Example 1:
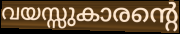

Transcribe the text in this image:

വയസ്സുകാരന്റെ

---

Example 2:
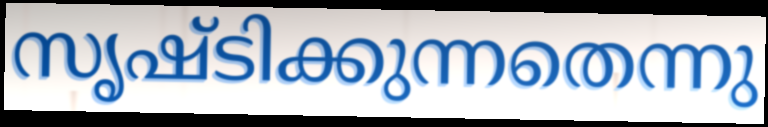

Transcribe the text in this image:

സൃഷ്ടിക്കുന്നതെന്നു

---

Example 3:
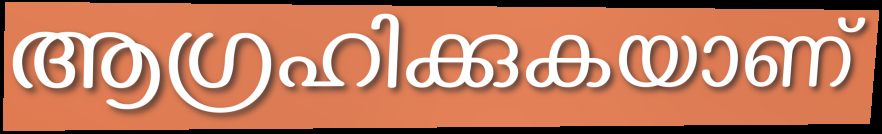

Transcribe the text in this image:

ആഗ്രഹിക്കുകയാണ്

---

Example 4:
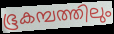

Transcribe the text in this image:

ഭൂകമ്പത്തിലും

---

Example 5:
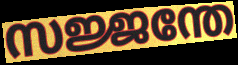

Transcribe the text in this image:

സജ്ജന്തേ